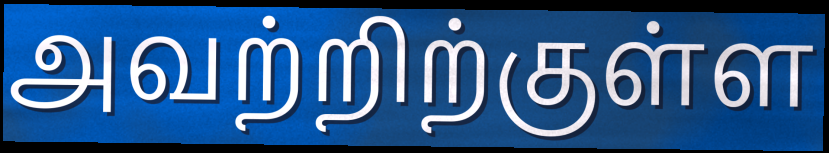
அவற்றிற்குள்ள